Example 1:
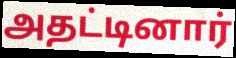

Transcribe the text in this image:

அதட்டினார்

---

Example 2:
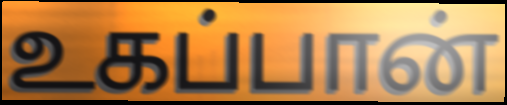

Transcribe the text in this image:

உகப்பான்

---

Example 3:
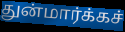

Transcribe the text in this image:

துன்மார்க்கச்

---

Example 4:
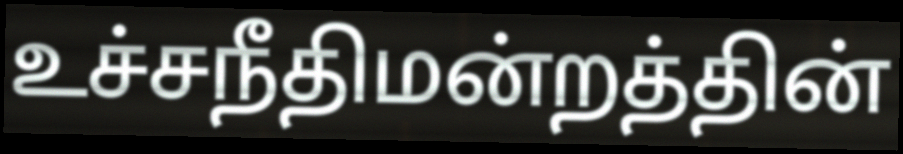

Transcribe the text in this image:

உச்சநீதிமன்றத்தின்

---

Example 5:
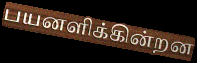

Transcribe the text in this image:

பயனளிக்கின்றன